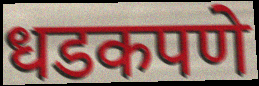
धडकपणे